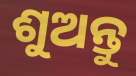
ଶୁଅନ୍ତୁ